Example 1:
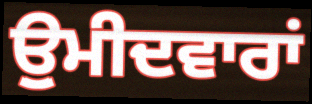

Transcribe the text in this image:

ਉੁਮੀਦਵਾਰਾਂ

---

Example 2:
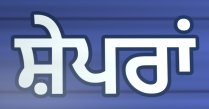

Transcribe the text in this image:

ਸ਼ੇਪਰਾਂ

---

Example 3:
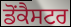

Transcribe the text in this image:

ਡੋਂਕੈਸਟਰ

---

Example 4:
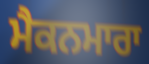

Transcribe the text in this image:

ਮੈਕਨਮਾਰਾ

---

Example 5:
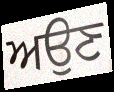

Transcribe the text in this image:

ਅਉਣ